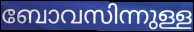
ബോവസിന്നുള്ള